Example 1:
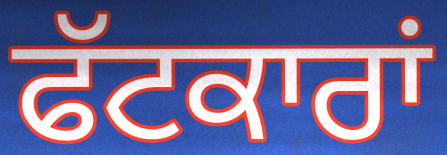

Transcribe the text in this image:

ਫੱਟਕਾਰਾਂ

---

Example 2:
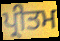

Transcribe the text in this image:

ਪ੍ਰੀਤਮ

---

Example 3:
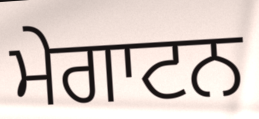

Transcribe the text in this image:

ਮੇਗਾਟਨ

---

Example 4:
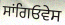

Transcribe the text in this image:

ਸਾਂਗਿਓਵੇਸ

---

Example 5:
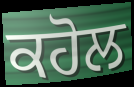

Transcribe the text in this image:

ਕਹੋਲ